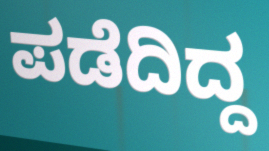
ಪಡೆದಿದ್ದ